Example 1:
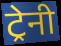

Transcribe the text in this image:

ट्रेनी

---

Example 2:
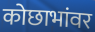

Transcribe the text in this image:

कोछाभांवर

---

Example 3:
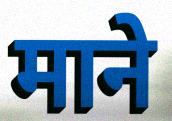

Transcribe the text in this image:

माने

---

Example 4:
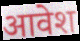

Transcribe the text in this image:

आवेश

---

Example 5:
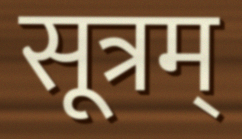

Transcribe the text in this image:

सूत्रम्